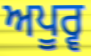
ਅਪੂਰ੍ਵ